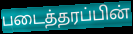
படைத்தரப்பின்